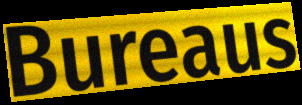
Bureaus